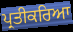
ਪ੍ਰਤੀਕਰਿਆ